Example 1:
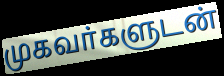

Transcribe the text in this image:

முகவர்களுடன்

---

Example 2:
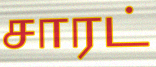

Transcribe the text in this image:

சாரட்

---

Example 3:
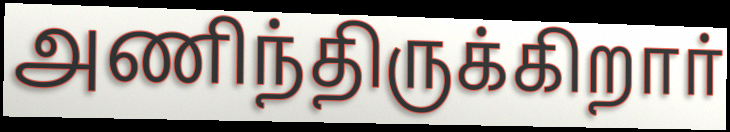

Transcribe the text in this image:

அணிந்திருக்கிறார்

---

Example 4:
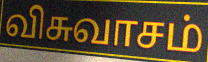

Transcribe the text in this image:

விசுவாசம்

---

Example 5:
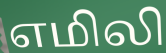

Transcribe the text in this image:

எமிலி